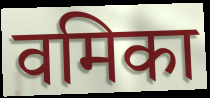
वमिका